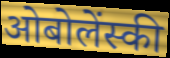
ओबोलेंस्की